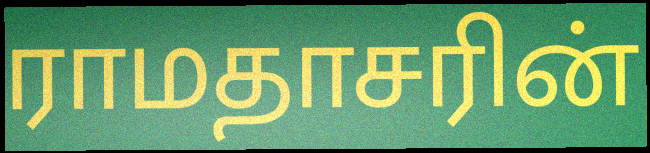
ராமதாசரின்